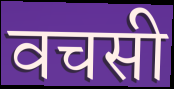
वचसी